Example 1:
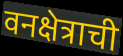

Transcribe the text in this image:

वनक्षेत्राची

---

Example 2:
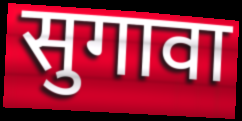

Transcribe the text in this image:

सुगावा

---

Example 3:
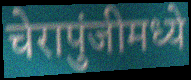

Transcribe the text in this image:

चेरापुंजीमध्ये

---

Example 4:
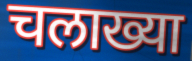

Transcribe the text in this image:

चलाख्या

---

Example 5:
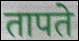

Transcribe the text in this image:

तापते